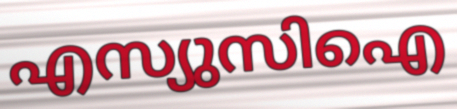
എസ്യുസിഐ